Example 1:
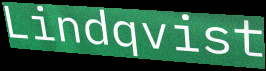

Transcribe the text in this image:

Lindqvist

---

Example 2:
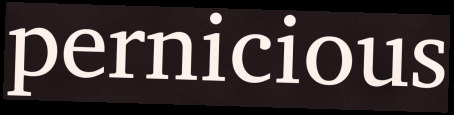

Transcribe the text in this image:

pernicious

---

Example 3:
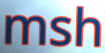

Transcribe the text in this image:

msh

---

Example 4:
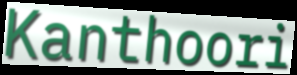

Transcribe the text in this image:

Kanthoori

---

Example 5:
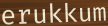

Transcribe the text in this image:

erukkum